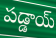
పడ్డాయ్